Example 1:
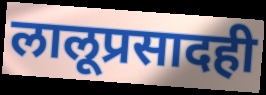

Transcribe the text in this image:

लालूप्रसादही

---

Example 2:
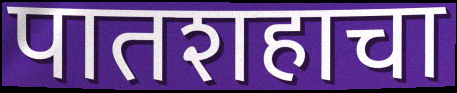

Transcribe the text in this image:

पातशहाचा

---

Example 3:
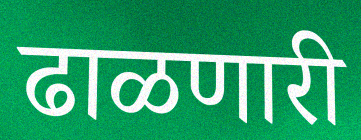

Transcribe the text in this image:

ढाळणारी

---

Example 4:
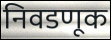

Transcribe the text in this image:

निवडणूक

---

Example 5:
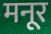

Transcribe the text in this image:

मनूर